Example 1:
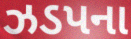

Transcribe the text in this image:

ઝડપના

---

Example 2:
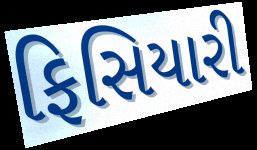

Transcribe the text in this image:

ફિસિયારી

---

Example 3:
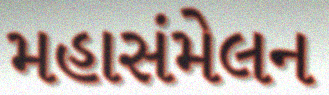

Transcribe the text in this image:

મહાસંમેલન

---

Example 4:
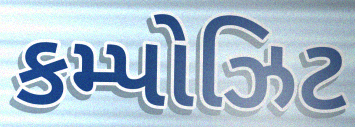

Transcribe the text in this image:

કમ્પોઝિટ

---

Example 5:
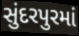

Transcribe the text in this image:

સુંદરપુરમાં